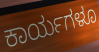
ಕಾರ್ಯಗಳೂ